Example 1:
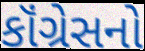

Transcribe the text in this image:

કૉંગ્રેસનો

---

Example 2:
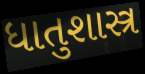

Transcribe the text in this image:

ધાતુશાસ્ત્ર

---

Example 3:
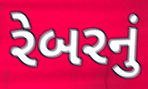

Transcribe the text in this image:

રેબરનું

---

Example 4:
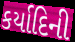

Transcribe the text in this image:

કર્યાદિની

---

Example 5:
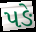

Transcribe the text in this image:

પઙે